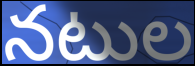
నటుల